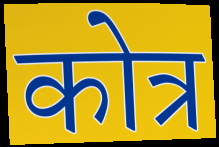
कोत्र